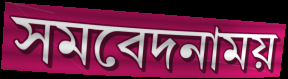
সমবেদনাময়